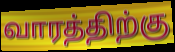
வாரத்திற்கு